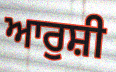
ਆਰੁਸ਼ੀ